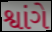
શ્વાંગે